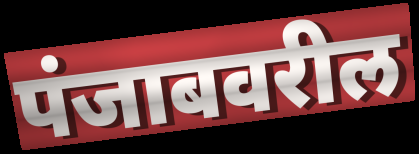
पंजाबवरील